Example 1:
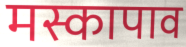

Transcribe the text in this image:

मस्कापाव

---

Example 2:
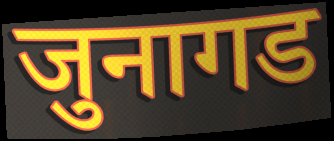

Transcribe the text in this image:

जुनागड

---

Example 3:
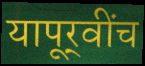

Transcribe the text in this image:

यापूर्वींच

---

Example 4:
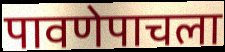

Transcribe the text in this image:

पावणेपाचला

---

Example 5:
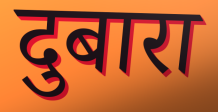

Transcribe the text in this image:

दुबारा